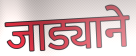
जाड्याने